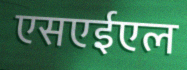
एसएईएल